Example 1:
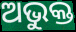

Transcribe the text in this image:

ଅଭୁକ୍ତ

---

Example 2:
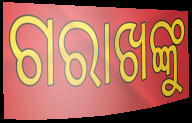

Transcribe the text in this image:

ଗରାଖଙ୍କୁ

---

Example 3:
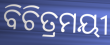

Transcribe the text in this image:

ବିଚିତ୍ରମୟୀ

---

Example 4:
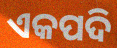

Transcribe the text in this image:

ଏକପଦି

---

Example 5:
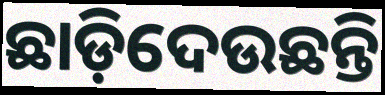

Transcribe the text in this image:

ଛାଡ଼ିଦେଉଛନ୍ତି